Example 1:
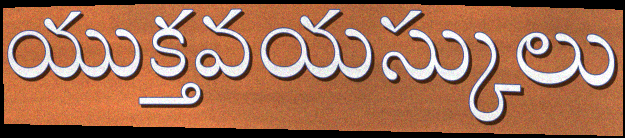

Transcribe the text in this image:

యుక్తవయస్కులు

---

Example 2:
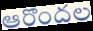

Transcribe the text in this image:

ఆరొందల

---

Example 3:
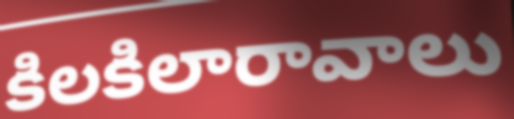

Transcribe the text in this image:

కిలకిలారావాలు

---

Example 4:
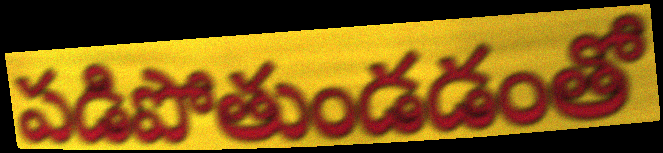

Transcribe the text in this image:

పడిపోతుండడంతో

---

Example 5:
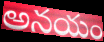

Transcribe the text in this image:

అనయం